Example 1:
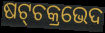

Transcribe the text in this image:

ଷଟ୍‌ଚକ୍ରଭେଦ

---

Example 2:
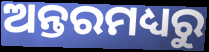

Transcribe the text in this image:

ଅନ୍ତରମଧ୍ୟରୁ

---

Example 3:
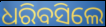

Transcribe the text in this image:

ଧରିବସିଲେ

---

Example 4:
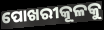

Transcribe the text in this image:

ପୋଖରୀକୂଳକୁ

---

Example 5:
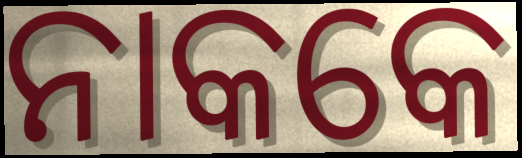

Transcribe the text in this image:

ନାକକେ